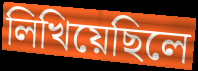
লিখিয়েছিলে